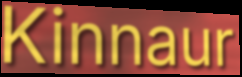
Kinnaur